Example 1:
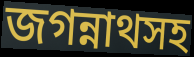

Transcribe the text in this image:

জগন্নাথসহ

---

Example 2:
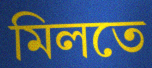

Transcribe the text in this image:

মিলতে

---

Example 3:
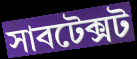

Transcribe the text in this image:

সাবটেক্সট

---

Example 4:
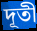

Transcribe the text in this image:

দূতী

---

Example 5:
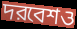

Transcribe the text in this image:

দরবেশও